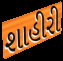
શાહીરી